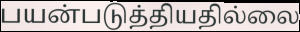
பயன்படுத்தியதில்லை